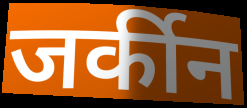
जर्कीन